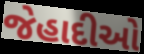
જેહાદીઓ